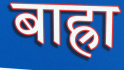
बाह्रा